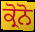
ਕ੍ਰੋਨੋ